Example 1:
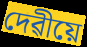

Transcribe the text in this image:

দেৱীয়ে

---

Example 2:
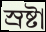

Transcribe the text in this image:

স্ৰষ্টা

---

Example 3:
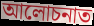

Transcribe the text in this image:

আলোচনাত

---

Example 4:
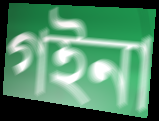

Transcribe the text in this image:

গইনা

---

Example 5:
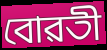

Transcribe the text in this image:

বোৱতী